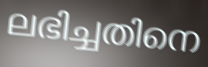
ലഭിച്ചതിനെ